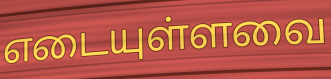
எடையுள்ளவை